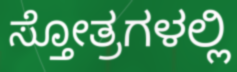
ಸ್ತೋತ್ರಗಳಲ್ಲಿ